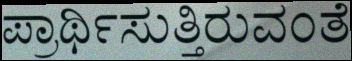
ಪ್ರಾರ್ಥಿಸುತ್ತಿರುವಂತೆ